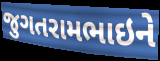
જુગતરામભાઇને